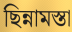
ছিন্নামস্তা